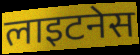
लाइटनेस